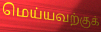
மெய்யவற்குக்